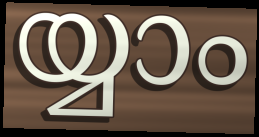
യ്യാം